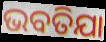
ଭବତିଯା